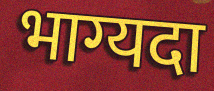
भाग्यदा